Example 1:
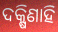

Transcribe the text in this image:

ଦକ୍ଷିଣାହି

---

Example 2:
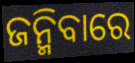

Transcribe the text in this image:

ଜନ୍ମିବାରେ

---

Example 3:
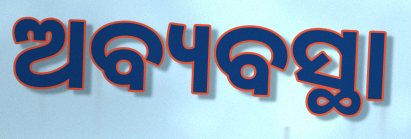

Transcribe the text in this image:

ଅବ୍ୟବସ୍ଥା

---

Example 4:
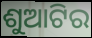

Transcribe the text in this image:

ଶୁଆଟିର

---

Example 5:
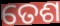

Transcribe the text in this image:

ତେଶ